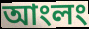
আংলং